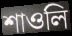
শাওলি